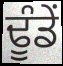
ਢੂੰਡੇਂ